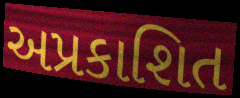
અપ્રકાશિત